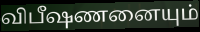
விபீஷணனையும்